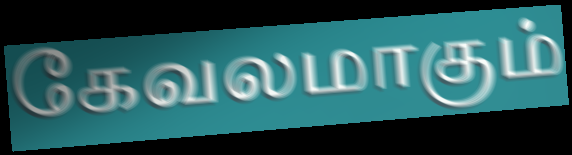
கேவலமாகும்